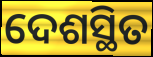
ଦେଶସ୍ଥିତ